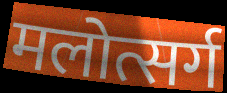
मलोत्सर्ग